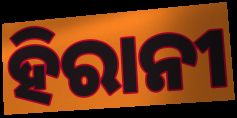
ହିରାନୀ